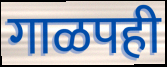
गाळपही